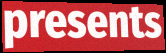
presents